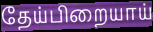
தேய்பிறையாய்